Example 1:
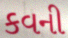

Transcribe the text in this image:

કવની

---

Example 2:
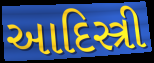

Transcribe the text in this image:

આદિસ્ત્રી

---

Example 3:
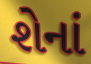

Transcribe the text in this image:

શેનાં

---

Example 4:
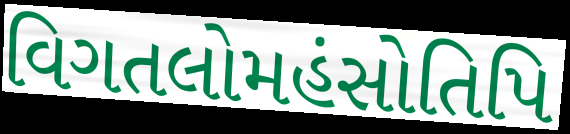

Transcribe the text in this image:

વિગતલોમહંસોતિપિ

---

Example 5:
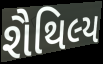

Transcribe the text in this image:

શૈથિલ્ય